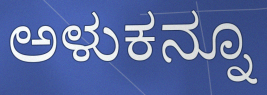
ಅಳುಕನ್ನೂ